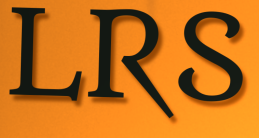
LRS